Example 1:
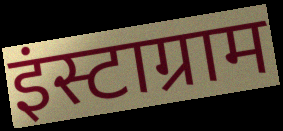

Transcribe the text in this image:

इंस्टाग्राम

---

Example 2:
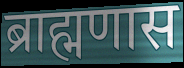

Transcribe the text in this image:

ब्राह्मणास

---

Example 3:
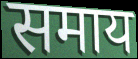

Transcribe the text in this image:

समाय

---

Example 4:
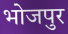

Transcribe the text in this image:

भोजपुर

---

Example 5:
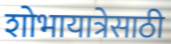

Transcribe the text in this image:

शोभायात्रेसाठी